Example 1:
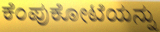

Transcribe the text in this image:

ಕೆಂಪುಕೋಟೆಯನ್ನು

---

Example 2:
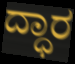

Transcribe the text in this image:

ದ್ಧಾರ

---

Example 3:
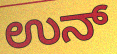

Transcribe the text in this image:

ಉನ್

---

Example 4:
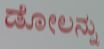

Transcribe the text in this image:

ಡೋಲನ್ನು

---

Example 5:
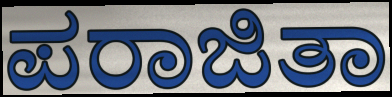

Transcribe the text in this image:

ಪರಾಜಿತಾ